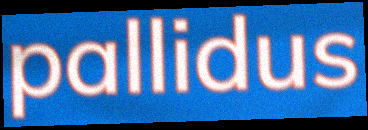
pallidus